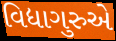
વિદ્યાગુરુએ